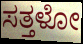
ಸತ್ತಳೋ